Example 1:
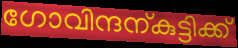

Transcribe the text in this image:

ഗോവിന്ദന്കുട്ടിക്ക്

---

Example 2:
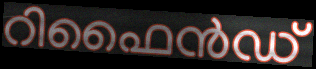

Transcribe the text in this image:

റിഫൈൻഡ്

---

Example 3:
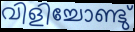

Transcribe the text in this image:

വിളിച്ചോണ്ടു്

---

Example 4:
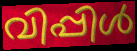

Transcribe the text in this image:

വിപ്പിൾ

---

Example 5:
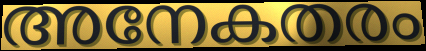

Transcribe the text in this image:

അനേകതരം